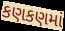
કણકણમાં